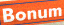
Bonum